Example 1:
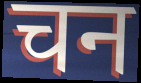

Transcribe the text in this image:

चन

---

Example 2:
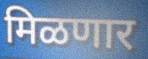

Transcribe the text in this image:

मिळणार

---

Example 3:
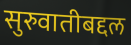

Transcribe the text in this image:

सुरुवातीबद्दल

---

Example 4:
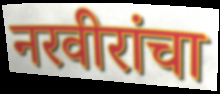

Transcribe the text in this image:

नरवीरांचा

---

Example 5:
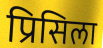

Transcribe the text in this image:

प्रिसिला